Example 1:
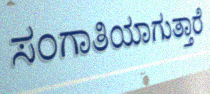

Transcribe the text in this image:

ಸಂಗಾತಿಯಾಗುತ್ತಾರೆ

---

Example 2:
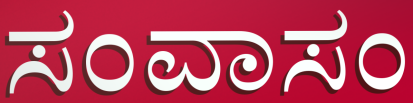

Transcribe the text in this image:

ಸಂವಾಸಂ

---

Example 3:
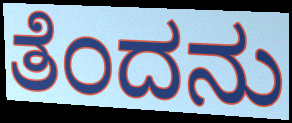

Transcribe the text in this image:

ತೆಂದನು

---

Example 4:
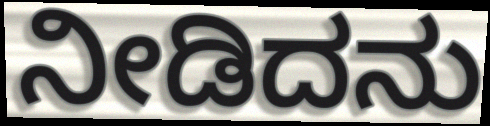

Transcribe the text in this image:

ನೀಡಿದನು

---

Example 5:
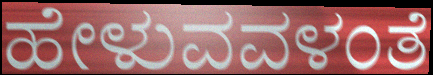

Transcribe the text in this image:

ಹೇಳುವವಳಂತೆ